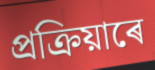
প্ৰক্ৰিয়াৰে